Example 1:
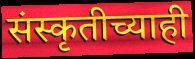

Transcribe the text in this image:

संस्कृतीच्याही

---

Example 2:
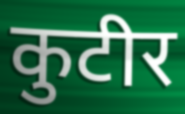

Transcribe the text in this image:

कुटीर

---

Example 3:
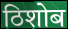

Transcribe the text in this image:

ठिशोब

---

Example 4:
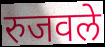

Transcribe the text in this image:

रुजवले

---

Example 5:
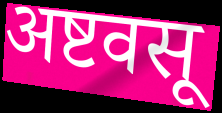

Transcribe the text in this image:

अष्टवसू